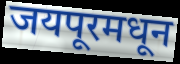
जयपूरमधून